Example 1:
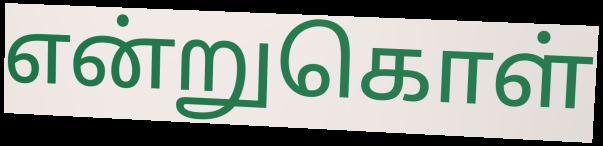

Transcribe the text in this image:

என்றுகொள்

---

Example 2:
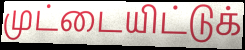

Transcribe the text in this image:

முட்டையிட்டுக்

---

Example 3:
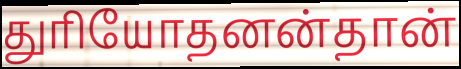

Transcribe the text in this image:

துரியோதனன்தான்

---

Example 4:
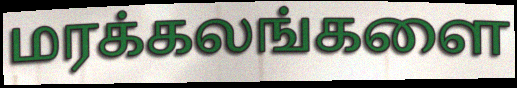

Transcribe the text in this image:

மரக்கலங்களை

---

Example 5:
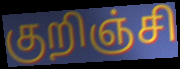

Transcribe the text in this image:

குறிஞ்சி